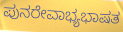
ಪುನರೇವಾಭ್ಯಭಾಷತ